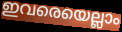
ഇവരെയെല്ലാം